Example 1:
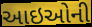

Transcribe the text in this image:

આઇઓની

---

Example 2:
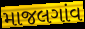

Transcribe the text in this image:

માજલગાંવ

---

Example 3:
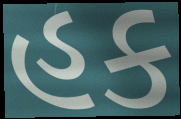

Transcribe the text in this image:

હક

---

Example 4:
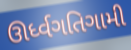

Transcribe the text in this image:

ઊર્ધ્વગતિગામી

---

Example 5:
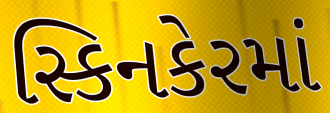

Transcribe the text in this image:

સ્કિનકેરમાં